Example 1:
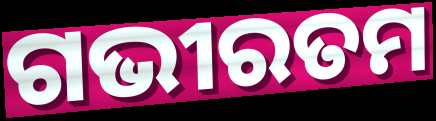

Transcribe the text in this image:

ଗଭୀରତମ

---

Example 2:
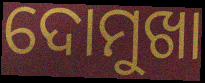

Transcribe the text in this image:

ଦୋମୁଖା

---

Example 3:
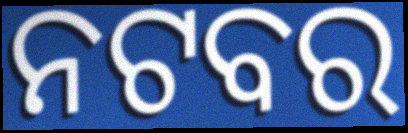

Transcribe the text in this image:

ନଟବର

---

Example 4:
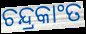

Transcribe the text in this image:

ଚନ୍ଦ୍ରକାଂତ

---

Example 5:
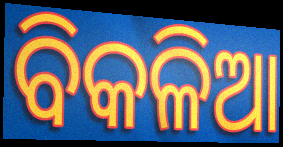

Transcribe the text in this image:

ବିକଳିଆ